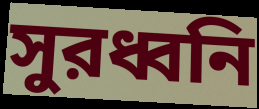
সুরধ্বনি